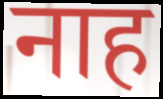
नाह